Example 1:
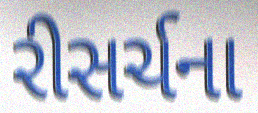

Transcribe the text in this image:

રીસર્ચના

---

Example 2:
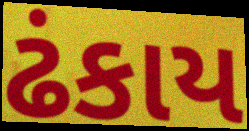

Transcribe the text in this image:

ઢંકાય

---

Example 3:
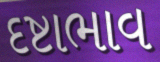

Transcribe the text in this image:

દષ્ટાભાવ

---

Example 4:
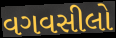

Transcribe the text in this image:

વગવસીલો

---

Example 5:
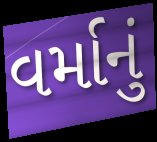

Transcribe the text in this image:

વર્માનું